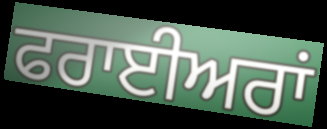
ਫਰਾਈਅਰਾਂ